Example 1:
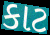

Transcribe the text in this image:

કાટ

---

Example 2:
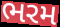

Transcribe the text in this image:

ભરમ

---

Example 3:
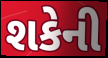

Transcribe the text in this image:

શકેની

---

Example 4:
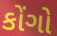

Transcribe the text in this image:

કોંગો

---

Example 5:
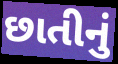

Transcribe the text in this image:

છાતીનું